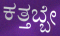
ಕತ್ತಬ್ಬೇ